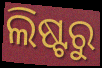
ଲିଷ୍ଟରୁ